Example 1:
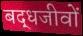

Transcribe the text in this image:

बद्धजीवों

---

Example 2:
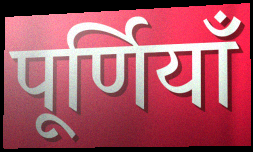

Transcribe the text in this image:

पूर्णियाँ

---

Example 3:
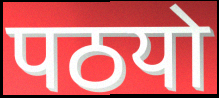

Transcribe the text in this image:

पठयो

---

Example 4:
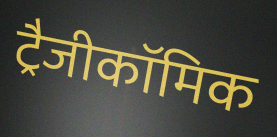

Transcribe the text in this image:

ट्रैजीकॉमिक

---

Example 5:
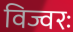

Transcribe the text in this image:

विज्वरः